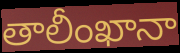
తాలీంఖానా